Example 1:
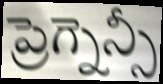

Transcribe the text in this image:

ప్రెగ్నెన్సీ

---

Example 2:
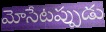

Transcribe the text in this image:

మోసేటప్పుడు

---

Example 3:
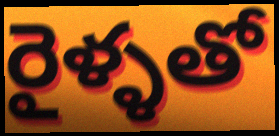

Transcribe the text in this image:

రైళ్ళతో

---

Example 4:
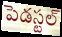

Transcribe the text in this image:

పెడస్టల్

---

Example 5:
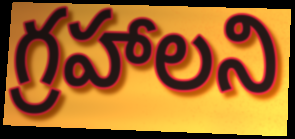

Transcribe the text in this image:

గ్రహాలని